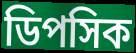
ডিপসিক